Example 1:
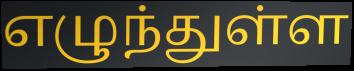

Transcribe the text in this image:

எழுந்துள்ள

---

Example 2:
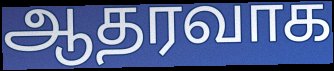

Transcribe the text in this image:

ஆதரவாக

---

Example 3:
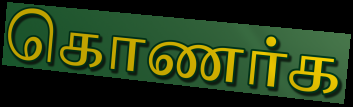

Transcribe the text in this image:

கொணர்க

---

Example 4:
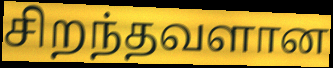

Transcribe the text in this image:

சிறந்தவளான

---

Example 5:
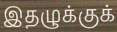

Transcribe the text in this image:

இதழுக்குக்